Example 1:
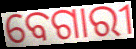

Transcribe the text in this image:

ବେଗାରୀ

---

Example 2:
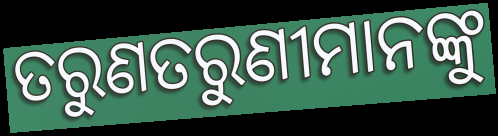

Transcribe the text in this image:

ତରୁଣତରୁଣୀମାନଙ୍କୁ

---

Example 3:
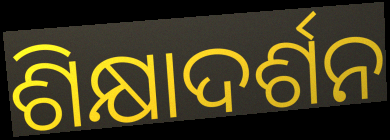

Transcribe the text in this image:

ଶିକ୍ଷାଦର୍ଶନ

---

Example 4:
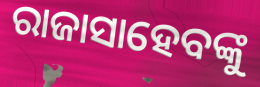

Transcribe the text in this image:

ରାଜାସାହେବଙ୍କୁ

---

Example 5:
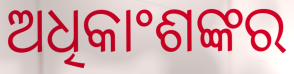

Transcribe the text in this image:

ଅଧିକାଂଶଙ୍କର